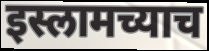
इस्लामच्याच